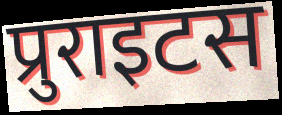
प्रुराइटस